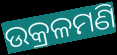
ଉକ୍ରଳମଣି